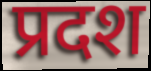
प्रदश